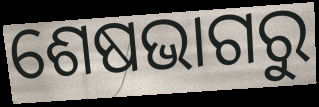
ଶେଷଭାଗରୁ